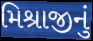
મિશ્રાજીનું